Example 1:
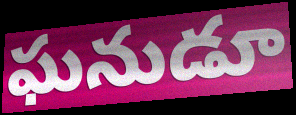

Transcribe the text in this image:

ఘనుడూ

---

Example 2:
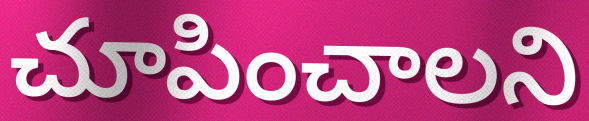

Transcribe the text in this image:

చూపించాలని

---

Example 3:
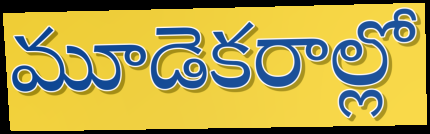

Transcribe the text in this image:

మూడెకరాల్లో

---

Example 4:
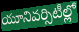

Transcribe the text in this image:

యూనివర్సిటీల్లో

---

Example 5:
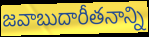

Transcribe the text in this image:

జవాబుదారీతనాన్ని